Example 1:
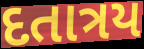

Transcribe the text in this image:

દતાત્રય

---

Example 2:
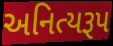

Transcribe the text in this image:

અનિત્યરૂપ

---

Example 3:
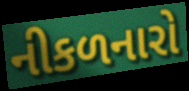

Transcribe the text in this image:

નીકળનારો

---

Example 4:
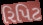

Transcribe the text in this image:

રિપિટ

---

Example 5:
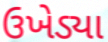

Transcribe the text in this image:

ઉખેડ્યા